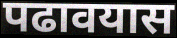
पढावयास